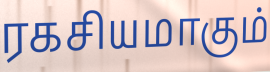
ரகசியமாகும்